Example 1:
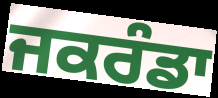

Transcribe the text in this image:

ਜਕਰੰਡਾ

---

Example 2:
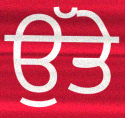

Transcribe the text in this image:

ਉੱਤੇ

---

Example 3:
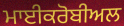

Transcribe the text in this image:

ਮਾਈਕਰੋਬੀਅਲ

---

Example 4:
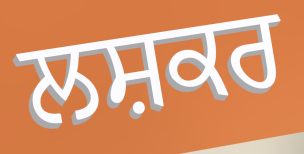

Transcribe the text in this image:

ਲਸ਼ਕਰ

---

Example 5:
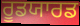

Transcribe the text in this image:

ਰੂਡਯਾਰਡ